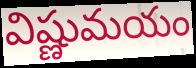
విష్ణుమయం